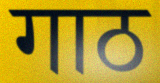
गाठ